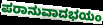
ಪರಾನುವಾದಭಯಂ